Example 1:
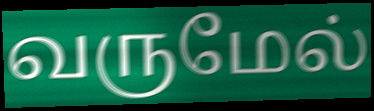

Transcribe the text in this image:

வருமேல்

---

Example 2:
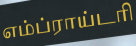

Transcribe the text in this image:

எம்ப்ராய்டரி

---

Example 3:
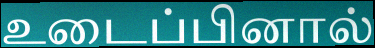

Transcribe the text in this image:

உடைப்பினால்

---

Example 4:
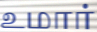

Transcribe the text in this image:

உமார்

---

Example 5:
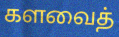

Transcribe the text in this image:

களவைத்